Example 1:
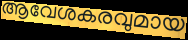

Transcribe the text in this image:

ആവേശകരവുമായ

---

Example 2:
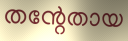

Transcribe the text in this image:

തന്റേതായ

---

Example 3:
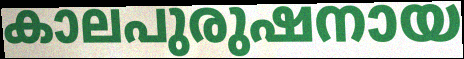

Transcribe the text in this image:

കാലപുരുഷനായ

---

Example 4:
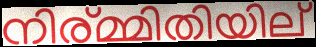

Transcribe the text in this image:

നിര്മ്മിതിയില്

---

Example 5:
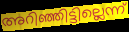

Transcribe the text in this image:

അറിഞ്ഞിട്ടില്ലെന്ന്